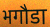
भगौडा